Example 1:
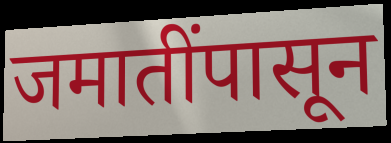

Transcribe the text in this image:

जमातींपासून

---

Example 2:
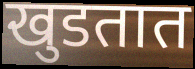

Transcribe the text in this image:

खुडतात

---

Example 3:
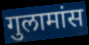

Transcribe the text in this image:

गुलामांस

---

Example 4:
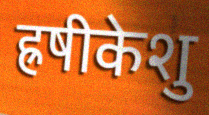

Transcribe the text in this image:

ह्रषीकेशु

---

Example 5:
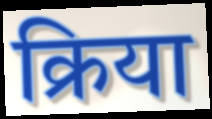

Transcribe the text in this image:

क्रिया